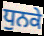
ਧੁਨਕੇ